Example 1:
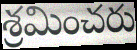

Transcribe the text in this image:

శ్రమించరు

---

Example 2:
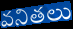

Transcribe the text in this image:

వనితలు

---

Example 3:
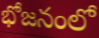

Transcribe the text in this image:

భోజనంలో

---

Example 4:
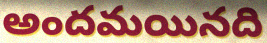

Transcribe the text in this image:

అందమయినది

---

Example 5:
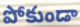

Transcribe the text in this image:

పోకుండా